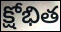
క్షోభిత